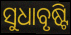
ସୁଧାବୃଷ୍ଟି